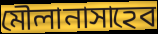
মৌলানাসাহেব